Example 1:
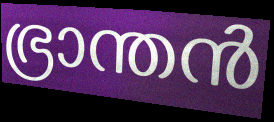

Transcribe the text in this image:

ഭ്രാന്തൻ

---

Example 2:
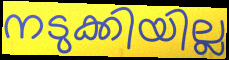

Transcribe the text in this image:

നടുക്കിയില്ല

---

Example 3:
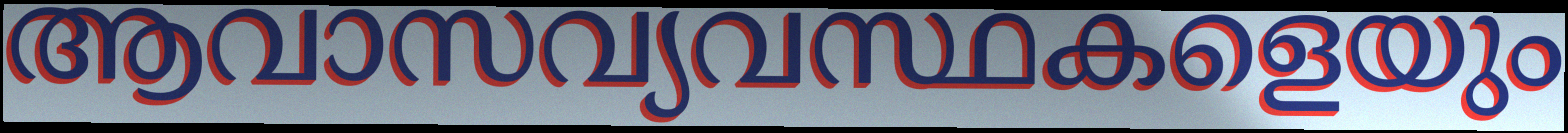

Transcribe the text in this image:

ആവാസവ്യവസ്ഥകളെയും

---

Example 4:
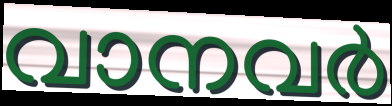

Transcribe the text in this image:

വാനവർ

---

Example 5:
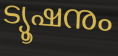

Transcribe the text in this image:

ട്യൂഷനും